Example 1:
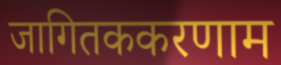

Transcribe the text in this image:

जागितककरणाम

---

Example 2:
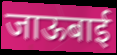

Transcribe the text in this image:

जाऊबाई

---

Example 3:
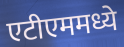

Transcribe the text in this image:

एटीएममध्ये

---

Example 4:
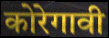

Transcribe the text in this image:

कोरेगावी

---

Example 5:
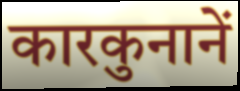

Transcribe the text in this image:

कारकुनानें